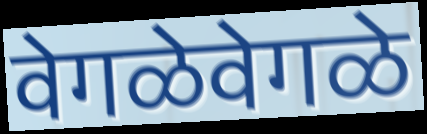
वेगळेवेगळे